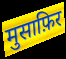
मुसाफ़िर